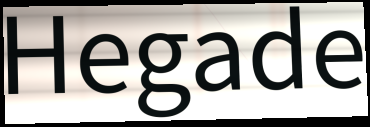
Hegade